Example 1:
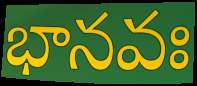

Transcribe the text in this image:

భానవః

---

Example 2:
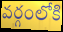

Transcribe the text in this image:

వర్గంలోకి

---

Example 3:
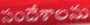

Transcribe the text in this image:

సందేశాలను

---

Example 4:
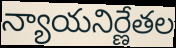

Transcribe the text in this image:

న్యాయనిర్ణేతల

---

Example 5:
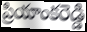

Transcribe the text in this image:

ప్రియాంకరెడ్డి